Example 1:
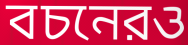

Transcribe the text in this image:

বচনেরও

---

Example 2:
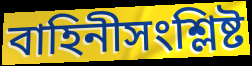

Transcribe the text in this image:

বাহিনীসংশ্লিষ্ট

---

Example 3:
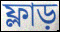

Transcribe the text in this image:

ফ্লাড়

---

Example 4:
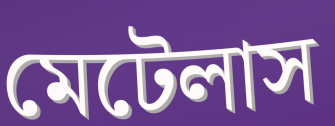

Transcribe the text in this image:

মেটেলাস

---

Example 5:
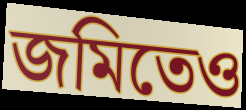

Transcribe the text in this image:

জমিতেও